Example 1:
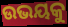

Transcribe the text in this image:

ଉଭୟକୁ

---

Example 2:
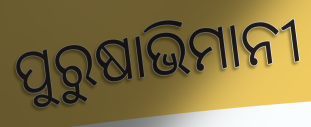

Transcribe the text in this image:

ପୁରୁଷାଭିମାନୀ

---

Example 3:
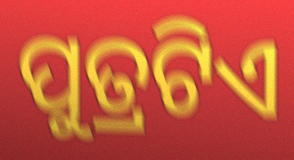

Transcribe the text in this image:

ପୁତ୍ରଟିଏ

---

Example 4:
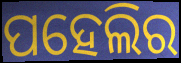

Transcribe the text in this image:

ପହେଲିର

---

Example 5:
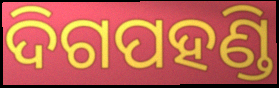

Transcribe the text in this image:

ଦିଗପହଣ୍ଡି